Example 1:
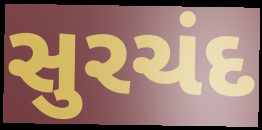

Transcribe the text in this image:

સુરચંદ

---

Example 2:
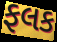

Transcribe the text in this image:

ફલક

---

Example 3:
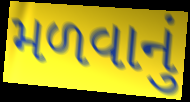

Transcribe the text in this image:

મળવાનું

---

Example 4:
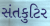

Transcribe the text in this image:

સંતકુટિર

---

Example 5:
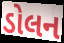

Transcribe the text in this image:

ડોલન